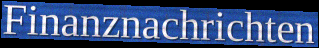
Finanznachrichten